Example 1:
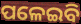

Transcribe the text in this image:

ପଳେଇବି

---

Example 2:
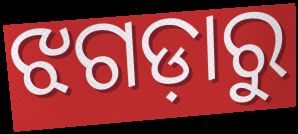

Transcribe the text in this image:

ଝଗଡ଼ାରୁ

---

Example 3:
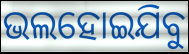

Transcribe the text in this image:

ଭଲହୋଇଯିବୁ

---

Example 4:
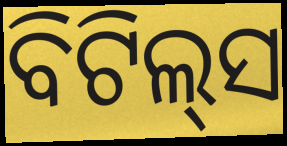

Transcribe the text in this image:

ବିଟିଲ୍‌ସ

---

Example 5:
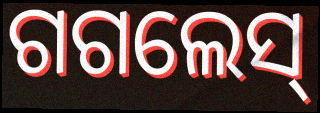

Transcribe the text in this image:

ଗଗଲେସ୍